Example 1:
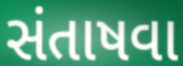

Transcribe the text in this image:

સંતાષવા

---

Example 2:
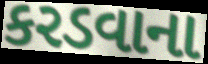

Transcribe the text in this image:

કરડવાના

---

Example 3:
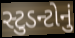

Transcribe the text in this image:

સ્ટુડન્ટોનું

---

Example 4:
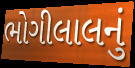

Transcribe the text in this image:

ભોગીલાલનું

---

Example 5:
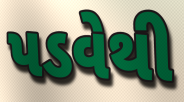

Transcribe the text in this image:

પડવેથી